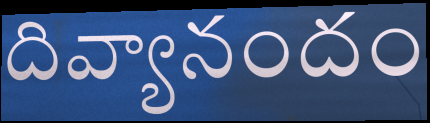
దివ్యానందం